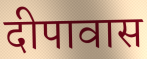
दीपावास